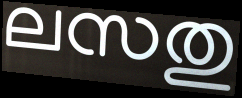
ലസതു